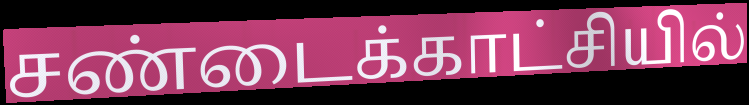
சண்டைக்காட்சியில்